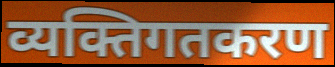
व्यक्तिगतकरण